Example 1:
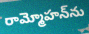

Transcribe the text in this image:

రామ్మోహన్‌ను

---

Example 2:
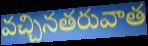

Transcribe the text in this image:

వచ్చినతరువాత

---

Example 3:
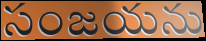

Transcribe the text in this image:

సంజయను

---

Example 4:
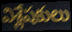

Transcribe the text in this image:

విశ్లేషకులు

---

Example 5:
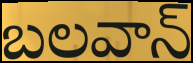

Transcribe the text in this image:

బలవాన్